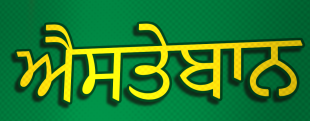
ਐਸਤੇਬਾਨ